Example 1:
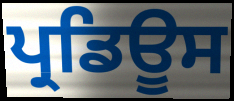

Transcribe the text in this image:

ਪ੍ਰਡਿਊਸ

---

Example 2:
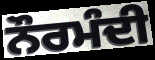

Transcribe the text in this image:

ਨੌਰਮੰਦੀ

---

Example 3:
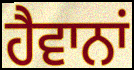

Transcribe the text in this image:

ਹੈਵਾਨਾਂ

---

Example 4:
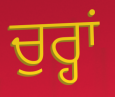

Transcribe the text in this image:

ਚੁਰ੍ਹਾਂ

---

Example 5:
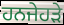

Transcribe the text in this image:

ਹਨਜੇਹੜੇ